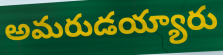
అమరుడయ్యారు